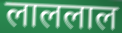
लाललाल